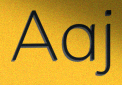
Aaj